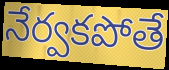
నేర్వకపోతే